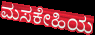
ಮಸಕೇಹಿಯ